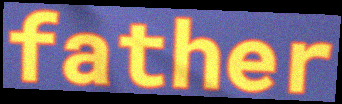
father